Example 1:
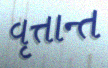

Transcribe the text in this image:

વૃત્તાન્ત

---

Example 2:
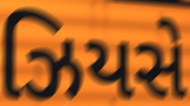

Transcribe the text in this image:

ઝિયસે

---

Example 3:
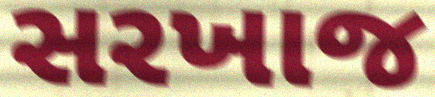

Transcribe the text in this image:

સરખાજ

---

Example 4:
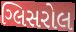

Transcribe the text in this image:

ગ્લિસરોલ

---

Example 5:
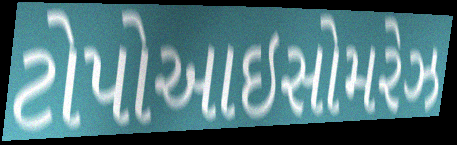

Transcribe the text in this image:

ટોપોઆઇસોમરેઝ